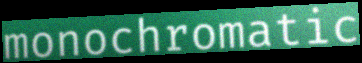
monochromatic